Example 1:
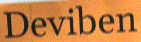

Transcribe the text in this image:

Deviben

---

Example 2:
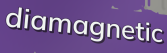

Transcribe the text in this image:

diamagnetic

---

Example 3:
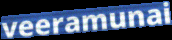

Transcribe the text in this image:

veeramunai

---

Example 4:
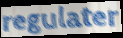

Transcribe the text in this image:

regulater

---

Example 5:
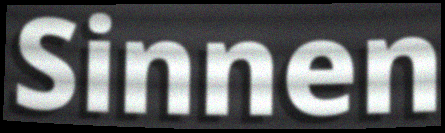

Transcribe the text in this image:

Sinnen